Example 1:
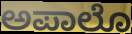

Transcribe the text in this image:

ಅಪಾಲೊ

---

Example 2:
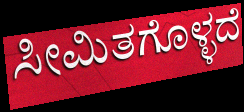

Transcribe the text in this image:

ಸೀಮಿತಗೊಳ್ಳದೆ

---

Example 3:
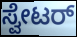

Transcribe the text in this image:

ಸ್ವೇಟರ್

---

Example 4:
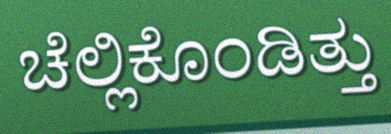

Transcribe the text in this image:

ಚೆಲ್ಲಿಕೊಂಡಿತ್ತು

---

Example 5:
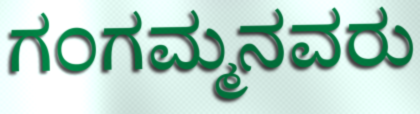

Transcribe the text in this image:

ಗಂಗಮ್ಮನವರು